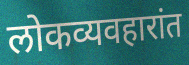
लोकव्यवहारांत